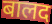
बालद